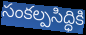
సంకల్పసిద్ధికి